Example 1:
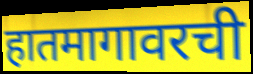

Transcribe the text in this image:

हातमागावरची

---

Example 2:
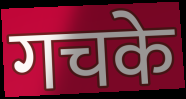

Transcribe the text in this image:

गचके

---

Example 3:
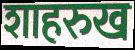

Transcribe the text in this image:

शाहरुख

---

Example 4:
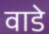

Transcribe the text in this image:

वाडे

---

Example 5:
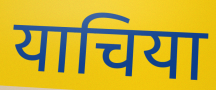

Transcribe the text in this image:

याचिया